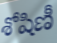
శోషిణీ